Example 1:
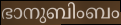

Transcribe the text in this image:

ഭാനുബിംബം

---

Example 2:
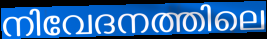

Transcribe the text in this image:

നിവേദനത്തിലെ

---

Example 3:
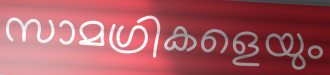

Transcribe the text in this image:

സാമഗ്രികളെയും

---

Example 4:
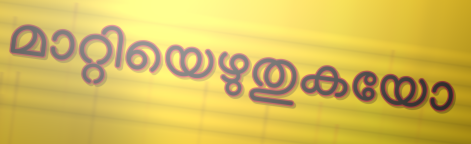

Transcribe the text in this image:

മാറ്റിയെഴുതുകയോ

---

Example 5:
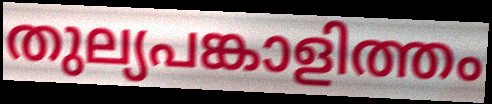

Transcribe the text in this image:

തുല്യപങ്കാളിത്തം